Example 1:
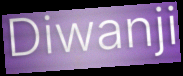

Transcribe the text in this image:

Diwanji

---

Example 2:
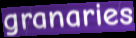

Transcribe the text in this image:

granaries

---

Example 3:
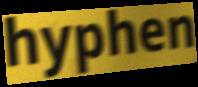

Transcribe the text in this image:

hyphen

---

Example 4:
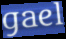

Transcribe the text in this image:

gael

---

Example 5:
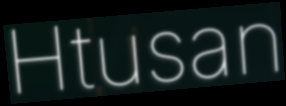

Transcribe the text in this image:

Htusan